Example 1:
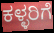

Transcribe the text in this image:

ಕಳ್ಳರಿಗೆ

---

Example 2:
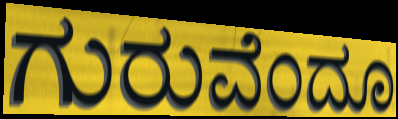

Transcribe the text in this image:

ಗುರುವೆಂದೂ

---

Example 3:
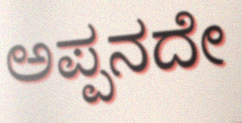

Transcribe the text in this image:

ಅಪ್ಪನದೇ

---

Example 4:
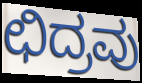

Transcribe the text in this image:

ಛಿದ್ರವು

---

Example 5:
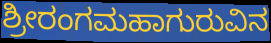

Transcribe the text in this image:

ಶ್ರೀರಂಗಮಹಾಗುರುವಿನ